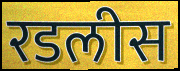
रडलीस